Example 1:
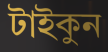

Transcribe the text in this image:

টাইকুন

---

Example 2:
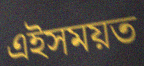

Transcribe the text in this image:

এইসময়ত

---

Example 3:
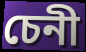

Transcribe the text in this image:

চেনী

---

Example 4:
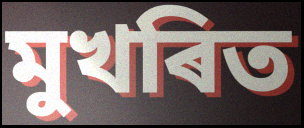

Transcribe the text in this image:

মুখৰিত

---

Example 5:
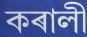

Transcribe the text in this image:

কৰালী